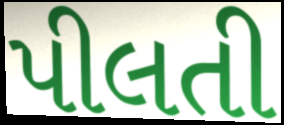
પીલતી